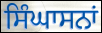
ਸਿੰਘਾਸਨਾਂ